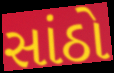
સાંઠો